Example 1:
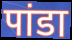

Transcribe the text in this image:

पांडा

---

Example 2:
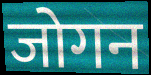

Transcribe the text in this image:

जोगन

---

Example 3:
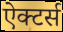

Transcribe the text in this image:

ऐक्टर्स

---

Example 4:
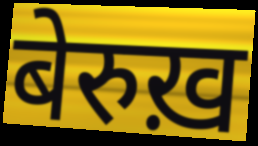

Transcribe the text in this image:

बेरुख़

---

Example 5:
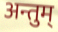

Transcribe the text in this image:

अन्तुम्